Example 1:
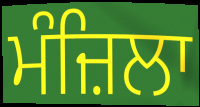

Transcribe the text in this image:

ਮੰਜ਼ਿਲਾ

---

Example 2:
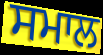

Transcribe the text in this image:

ਸਮਾਲ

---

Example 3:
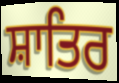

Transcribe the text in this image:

ਸ਼ਾਤਿਰ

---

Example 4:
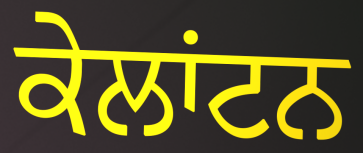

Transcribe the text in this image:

ਕੇਲਾਂਟਨ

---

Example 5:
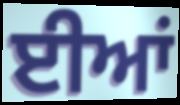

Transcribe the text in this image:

ਈਆਂ